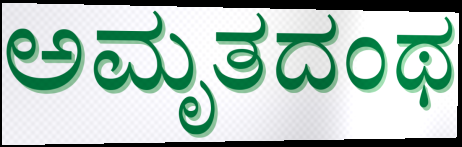
ಅಮೃತದಂಥ